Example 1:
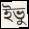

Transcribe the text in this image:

ইভু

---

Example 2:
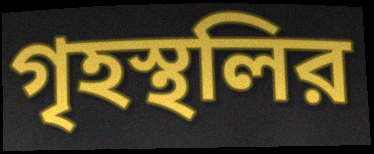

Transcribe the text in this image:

গৃহস্থলির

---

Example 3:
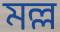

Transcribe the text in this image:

মল্ল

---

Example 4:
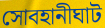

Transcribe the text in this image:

সোবহানীঘাট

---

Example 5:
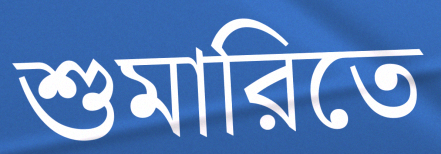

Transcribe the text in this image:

শুমারিতে